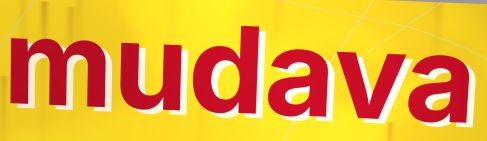
mudava